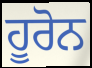
ਹੂਰੋਨ